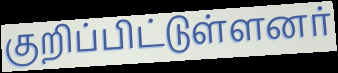
குறிப்பிட்டுள்ளனர்